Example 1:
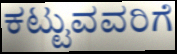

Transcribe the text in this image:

ಕಟ್ಟುವವರಿಗೆ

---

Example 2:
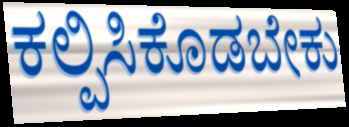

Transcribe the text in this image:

ಕಲ್ಪಿಸಿಕೊಡಬೇಕು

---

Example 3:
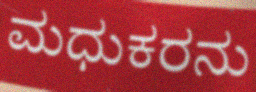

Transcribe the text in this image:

ಮಧುಕರನು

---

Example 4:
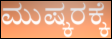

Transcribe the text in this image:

ಮುಷ್ಕರಕ್ಕೆ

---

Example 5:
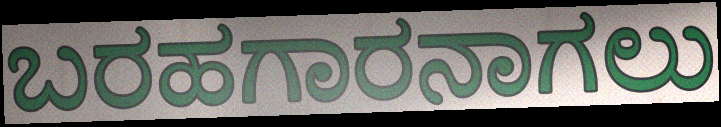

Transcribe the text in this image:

ಬರಹಗಾರನಾಗಲು